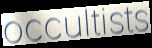
occultists